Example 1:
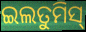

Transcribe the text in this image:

ଇଲତୁମିସ୍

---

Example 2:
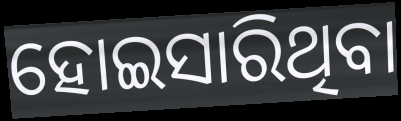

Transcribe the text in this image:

ହୋଇସାରିଥିବା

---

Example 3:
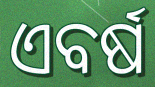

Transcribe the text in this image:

ଏବର୍ଷ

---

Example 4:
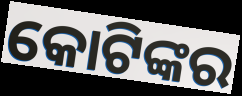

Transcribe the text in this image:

କୋଟିଙ୍କର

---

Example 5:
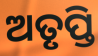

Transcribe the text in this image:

ଅତୃପ୍ତି